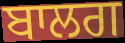
ਬਾਲਗ